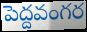
పెద్దవంగర